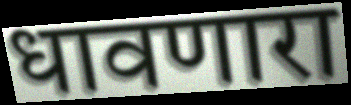
धावणारा